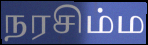
நரசிம்ம